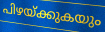
പിഴയ്ക്കുകയും